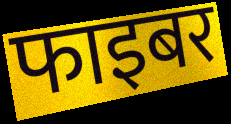
फाइबर